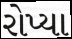
રોપ્યા